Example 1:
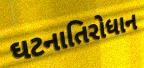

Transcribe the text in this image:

ઘટનાતિરોધાન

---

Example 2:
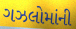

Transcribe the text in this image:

ગઝલોમાંની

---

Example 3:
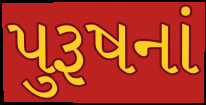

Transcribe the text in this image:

પુરૂષનાં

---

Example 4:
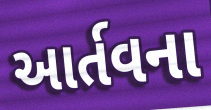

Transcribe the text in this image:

આર્તવના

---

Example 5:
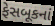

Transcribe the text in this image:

ફેસબૂકનાં